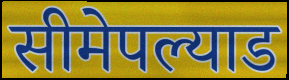
सीमेपल्याड